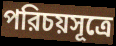
পরিচয়সূত্রে